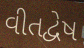
વીતદ્વેષ